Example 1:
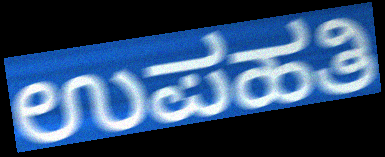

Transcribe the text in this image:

ಉಪಹತಿ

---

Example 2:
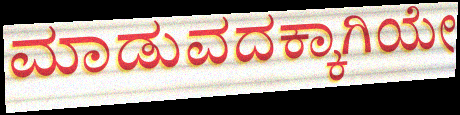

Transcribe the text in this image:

ಮಾಡುವದಕ್ಕಾಗಿಯೇ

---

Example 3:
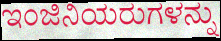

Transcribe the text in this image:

ಇಂಜಿನಿಯರುಗಳನ್ನು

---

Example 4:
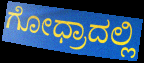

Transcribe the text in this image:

ಗೋಧ್ರಾದಲ್ಲಿ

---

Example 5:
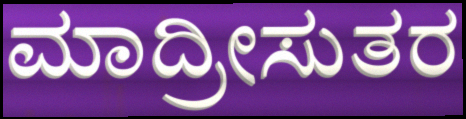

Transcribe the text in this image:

ಮಾದ್ರೀಸುತರ